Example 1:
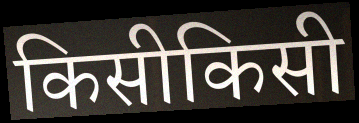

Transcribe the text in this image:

किसीकिसी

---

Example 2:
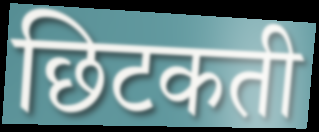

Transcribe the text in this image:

छिटकती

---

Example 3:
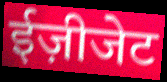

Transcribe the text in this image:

ईज़ीजेट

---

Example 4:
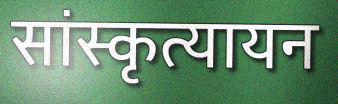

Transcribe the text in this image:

सांस्कृत्यायन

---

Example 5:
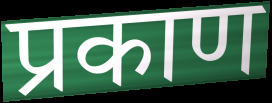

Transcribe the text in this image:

प्रकाण